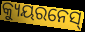
କ୍ୟୁୟରନେସ୍